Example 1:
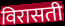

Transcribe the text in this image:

विरासती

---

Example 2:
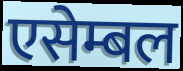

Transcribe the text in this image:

एसेम्बल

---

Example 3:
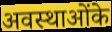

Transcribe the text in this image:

अवस्थाओंके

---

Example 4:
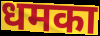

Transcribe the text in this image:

धमका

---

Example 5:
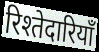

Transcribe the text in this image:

रिश्तेदारियाँ